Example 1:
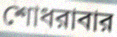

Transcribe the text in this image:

শোধরাবার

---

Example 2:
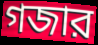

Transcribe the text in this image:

গজার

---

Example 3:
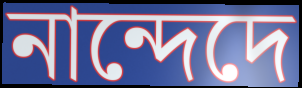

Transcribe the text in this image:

নান্দেদে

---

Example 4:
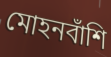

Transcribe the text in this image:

মোহনবাঁশি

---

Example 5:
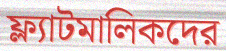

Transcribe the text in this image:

ফ্ল্যাটমালিকদের